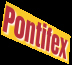
Pontifex